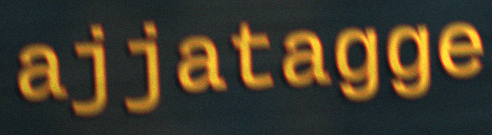
ajjatagge